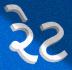
રેટ